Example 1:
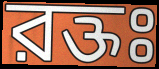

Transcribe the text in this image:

রক্তঃ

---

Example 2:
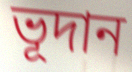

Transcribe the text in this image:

ভূদান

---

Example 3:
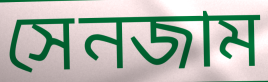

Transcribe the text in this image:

সেনজাম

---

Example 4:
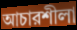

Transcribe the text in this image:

আচারশীলা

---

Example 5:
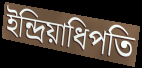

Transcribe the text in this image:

ইন্দ্রিয়াধিপতি